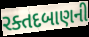
રક્તદબાણની